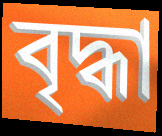
বৃদ্ধা